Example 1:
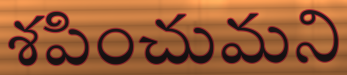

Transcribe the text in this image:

శపించుమని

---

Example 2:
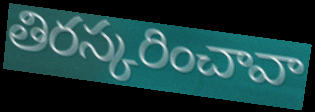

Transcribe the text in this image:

తిరస్కరించావా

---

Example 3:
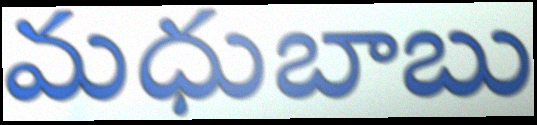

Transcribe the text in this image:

మధుబాబు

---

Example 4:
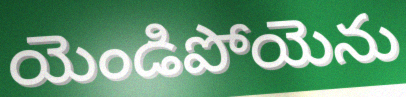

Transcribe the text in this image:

యెండిపోయెను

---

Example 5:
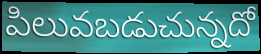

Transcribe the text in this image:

పిలువబడుచున్నదో